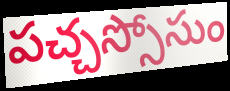
పచ్చస్సోసుం